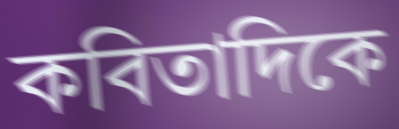
কবিতাদিকে